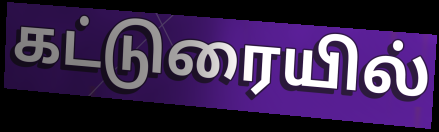
கட்டுரையில்